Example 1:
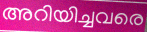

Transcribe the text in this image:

അറിയിച്ചവരെ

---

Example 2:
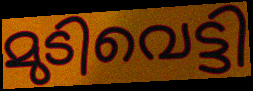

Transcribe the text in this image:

മുടിവെട്ടി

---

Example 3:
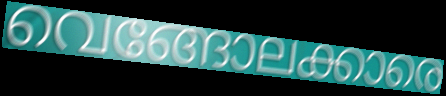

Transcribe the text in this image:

വെങ്ങോലക്കാരെ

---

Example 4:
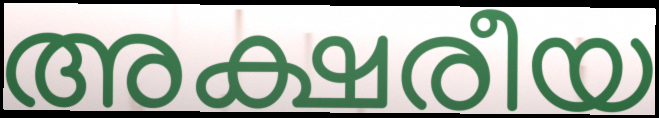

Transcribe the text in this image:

അക്ഷരീയ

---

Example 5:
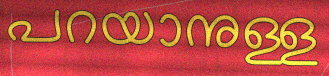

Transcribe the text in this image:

പറയാനുള്ള